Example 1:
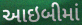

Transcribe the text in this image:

આઇબીમાં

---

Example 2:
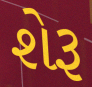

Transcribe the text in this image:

શેરૂ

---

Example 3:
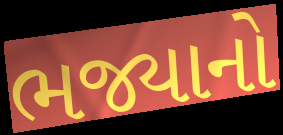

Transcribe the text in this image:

ભજ્યાનો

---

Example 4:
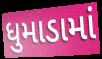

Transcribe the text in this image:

ધુમાડામાં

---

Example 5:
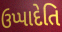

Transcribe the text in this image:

ઉપ્પાદેતિ